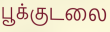
பூக்குடலை